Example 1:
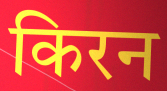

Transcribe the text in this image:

किरन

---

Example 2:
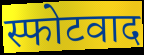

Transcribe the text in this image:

स्फोटवाद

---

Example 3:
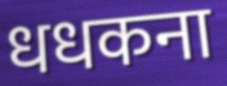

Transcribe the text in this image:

धधकना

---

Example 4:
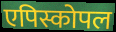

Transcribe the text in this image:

एपिस्कोपल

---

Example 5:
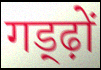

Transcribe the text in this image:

गड्‌ढ़ों